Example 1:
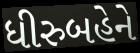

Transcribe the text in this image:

ધીરુબહેને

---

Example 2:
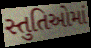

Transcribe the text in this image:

સ્તુતિઓમાં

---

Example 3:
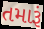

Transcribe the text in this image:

તમારૂં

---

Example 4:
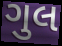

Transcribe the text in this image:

ગુલ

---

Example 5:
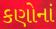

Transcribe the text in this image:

કણોનાં